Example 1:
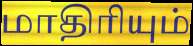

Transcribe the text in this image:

மாதிரியும்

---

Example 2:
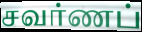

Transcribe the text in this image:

சவர்ணப்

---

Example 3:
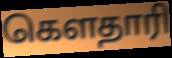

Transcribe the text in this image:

கௌதாரி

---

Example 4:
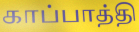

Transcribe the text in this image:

காப்பாத்தி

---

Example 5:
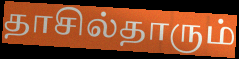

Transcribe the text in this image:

தாசில்தாரும்